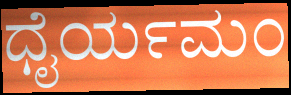
ಧೈರ್ಯಮಂ